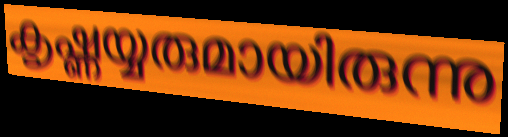
കൃഷ്ണയ്യരുമായിരുന്നു